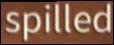
spilled